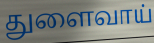
துளைவாய்